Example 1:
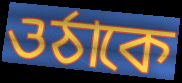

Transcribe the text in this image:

ওঠাকে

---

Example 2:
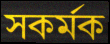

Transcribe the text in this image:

সকর্মক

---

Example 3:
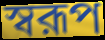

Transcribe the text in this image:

স্বরূপ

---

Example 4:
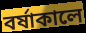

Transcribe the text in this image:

বর্ষাকালে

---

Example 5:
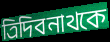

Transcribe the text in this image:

ত্রিদিবনাথকে